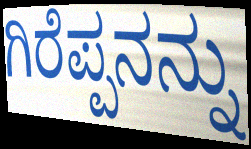
ಗಿರೆಪ್ಪನನ್ನು